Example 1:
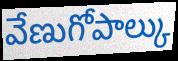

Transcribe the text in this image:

వేణుగోపాల్కు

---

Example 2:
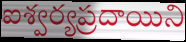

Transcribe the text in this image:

ఐశ్వర్యప్రదాయిని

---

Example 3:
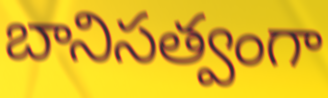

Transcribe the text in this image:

బానిసత్వంగా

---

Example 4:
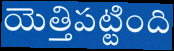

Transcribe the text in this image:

యెత్తిపట్టింది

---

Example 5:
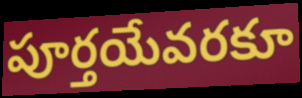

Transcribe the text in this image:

పూర్తయేవరకూ